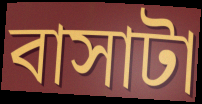
বাসাটা